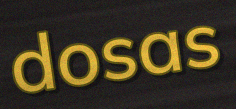
dosas